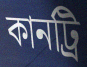
কানট্রি